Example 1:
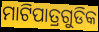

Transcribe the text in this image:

ମାଟିପାତ୍ରଗୁଡିକ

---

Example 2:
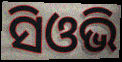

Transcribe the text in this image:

ସିଓଭି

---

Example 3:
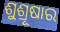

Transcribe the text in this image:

ଶୁଶ୍ରୂଷାର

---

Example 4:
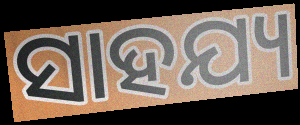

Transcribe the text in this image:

ସାହଯ୍ୟ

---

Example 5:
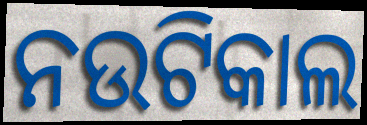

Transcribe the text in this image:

ନଉଟିକାଲ